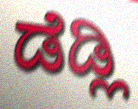
ಡೆಡ್ಲಿ